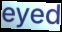
eyed